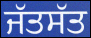
ਜੱਤਸੱਤ